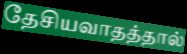
தேசியவாதத்தால்